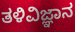
ತಳಿವಿಜ್ಞಾನ